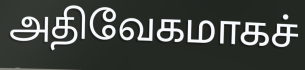
அதிவேகமாகச்